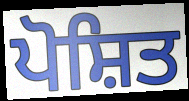
ਪੋਸ਼ਿਤ